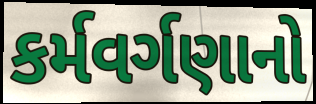
કર્મવર્ગણાનો